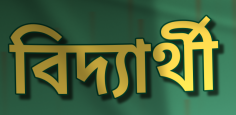
বিদ্যাৰ্থী